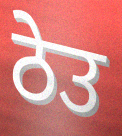
ठेउ